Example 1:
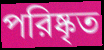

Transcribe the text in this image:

পরিষ্কৃত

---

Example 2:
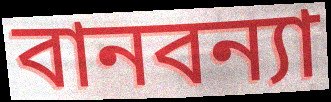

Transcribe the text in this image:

বানবন্যা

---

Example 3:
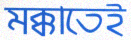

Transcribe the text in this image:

মক্কাতেই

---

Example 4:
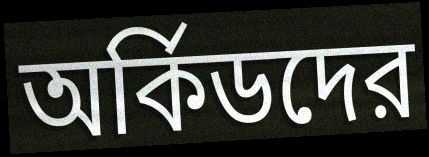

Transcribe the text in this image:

অর্কিডদের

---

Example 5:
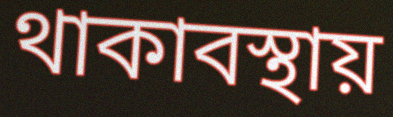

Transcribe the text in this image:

থাকাবস্থায়